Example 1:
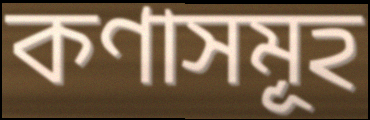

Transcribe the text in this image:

কণাসমূহ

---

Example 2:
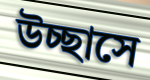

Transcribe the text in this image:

উচ্ছাসে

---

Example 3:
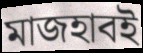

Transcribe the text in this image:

মাজহাবই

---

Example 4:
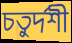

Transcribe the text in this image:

চতুর্দশী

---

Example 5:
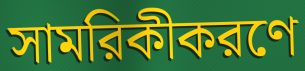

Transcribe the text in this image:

সামরিকীকরণে